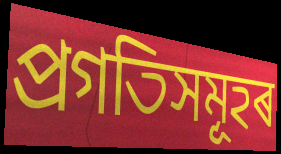
প্ৰগতিসমূহৰ